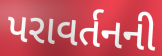
પરાવર્તનની